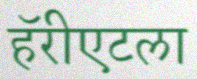
हॅरीएटला